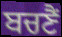
ਬਚਣੈਂ